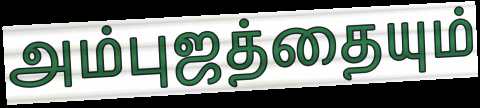
அம்புஜத்தையும்